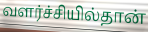
வளர்ச்சியில்தான்